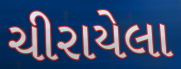
ચીરાયેલા